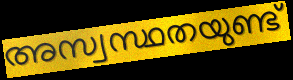
അസ്വസ്ഥതയുണ്ട്